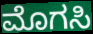
ಮೊಗಸಿ